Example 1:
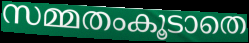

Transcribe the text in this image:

സമ്മതംകൂടാതെ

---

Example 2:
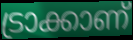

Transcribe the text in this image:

ട്രാക്കാണ്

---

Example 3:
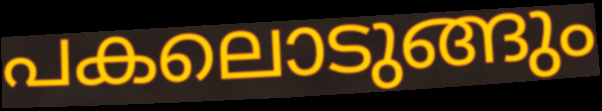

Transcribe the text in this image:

പകലൊടുങ്ങും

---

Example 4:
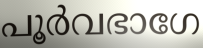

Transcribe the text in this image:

പൂർവഭാഗേ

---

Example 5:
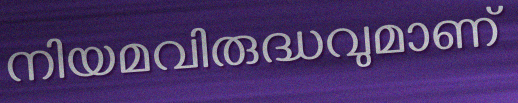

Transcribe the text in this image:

നിയമവിരുദ്ധവുമാണ്